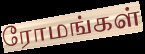
ரோமங்கள்